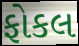
ફોકલ